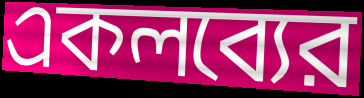
একলব্যের